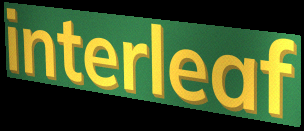
interleaf